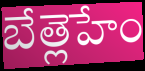
బేత్లెహేం